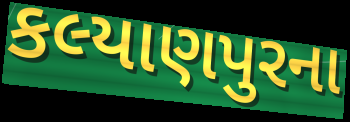
કલ્યાણપુરના